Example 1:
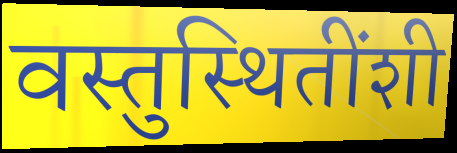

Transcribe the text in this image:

वस्तुस्थितींशी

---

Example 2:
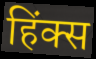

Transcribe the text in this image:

हिंक्स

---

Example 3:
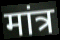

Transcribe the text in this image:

मांत्र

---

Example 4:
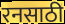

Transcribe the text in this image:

रनसाठी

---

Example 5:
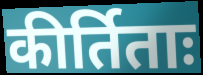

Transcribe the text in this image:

कीर्तिताः